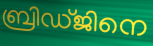
ബ്രിഡ്ജിനെ